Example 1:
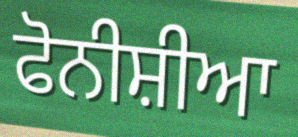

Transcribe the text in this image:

ਫੋਨੀਸ਼ੀਆ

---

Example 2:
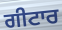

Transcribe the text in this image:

ਗੀਟਾਰ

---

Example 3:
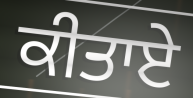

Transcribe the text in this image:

ਕੀਤਾਏ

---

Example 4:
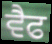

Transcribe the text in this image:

ਵੈਫ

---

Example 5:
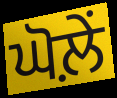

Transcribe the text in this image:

ਘੋਲ਼ੇਂ